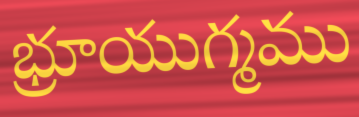
భ్రూయుగ్మము